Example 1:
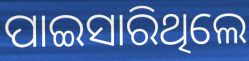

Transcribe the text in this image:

ପାଇସାରିଥିଲେ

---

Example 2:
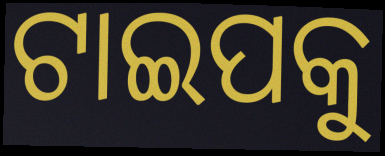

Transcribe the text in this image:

ଟାଇପକୁ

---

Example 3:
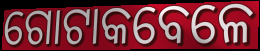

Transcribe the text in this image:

ଗୋଟାକବେଳେ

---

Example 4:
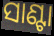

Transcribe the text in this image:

ସାଣ୍ଟା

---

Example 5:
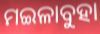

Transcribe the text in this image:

ମଇଳାବୁହା